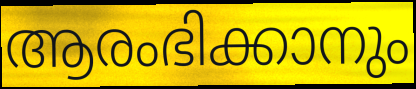
ആരംഭിക്കാനും